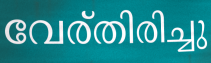
വേര്തിരിച്ചു